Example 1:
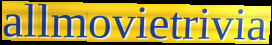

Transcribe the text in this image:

allmovietrivia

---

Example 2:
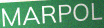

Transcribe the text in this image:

MARPOL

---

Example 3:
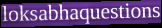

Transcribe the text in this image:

loksabhaquestions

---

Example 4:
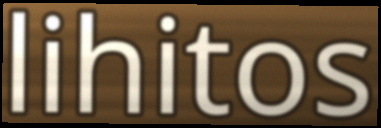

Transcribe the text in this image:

lihitos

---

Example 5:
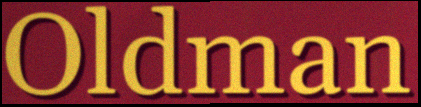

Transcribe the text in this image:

Oldman